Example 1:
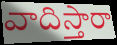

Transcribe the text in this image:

వాదిస్తారా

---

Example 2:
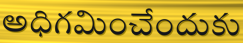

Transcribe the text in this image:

అధిగమించేందుకు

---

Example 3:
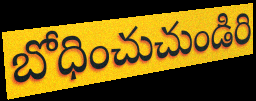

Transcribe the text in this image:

బోధించుచుండిరి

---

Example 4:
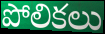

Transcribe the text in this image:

పోలికలు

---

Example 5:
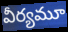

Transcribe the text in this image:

వీర్యమూ